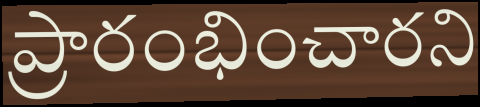
ప్రారంభించారని